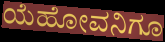
ಯೆಹೋವನಿಗೂ